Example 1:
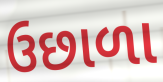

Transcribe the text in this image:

ઉછાળા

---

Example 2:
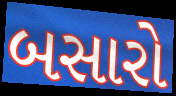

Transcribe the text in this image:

બસારો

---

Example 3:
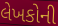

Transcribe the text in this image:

લેખકોની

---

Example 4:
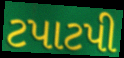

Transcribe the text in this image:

ટપાટપી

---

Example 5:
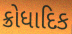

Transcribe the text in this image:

ક્રોધાદિક